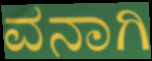
ವನಾಗಿ